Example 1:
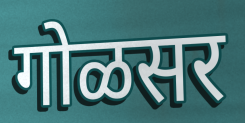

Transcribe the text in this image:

गोळसर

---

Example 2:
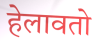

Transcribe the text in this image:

हेलावतो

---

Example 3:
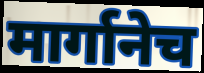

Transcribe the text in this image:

मार्गानेच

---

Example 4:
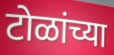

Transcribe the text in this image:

टोळांच्या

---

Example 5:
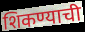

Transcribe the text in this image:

शिकण्याची